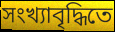
সংখ্যাবৃদ্ধিতে